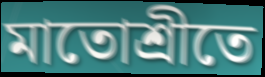
মাতোশ্রীতে